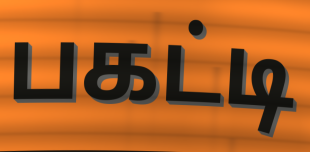
பகட்டி